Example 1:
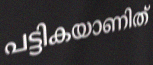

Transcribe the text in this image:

പട്ടികയാണിത്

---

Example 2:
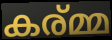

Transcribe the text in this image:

കര്മ്മ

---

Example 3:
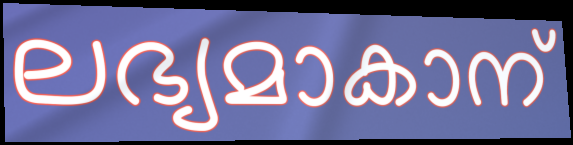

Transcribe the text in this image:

ലഭ്യമാകാന്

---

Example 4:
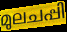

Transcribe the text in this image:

മുലചപ്പി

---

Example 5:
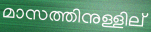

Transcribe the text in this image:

മാസത്തിനുള്ളില്